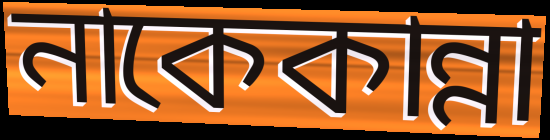
নাকেকান্না